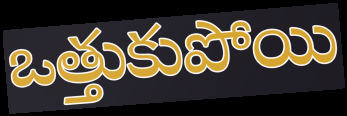
ఒత్తుకుపోయి